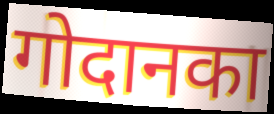
गोदानका